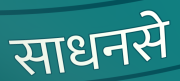
साधनसे